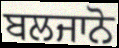
ਬਲਜਾਨੋ